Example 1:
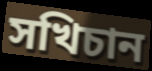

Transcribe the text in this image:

সখিচান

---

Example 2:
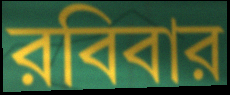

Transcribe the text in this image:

রবিবার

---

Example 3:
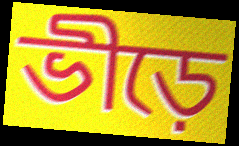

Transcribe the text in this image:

ভীড়ে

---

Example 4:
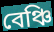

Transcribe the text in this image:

বেঞ্চি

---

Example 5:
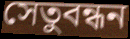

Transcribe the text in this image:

সেতুবন্ধন